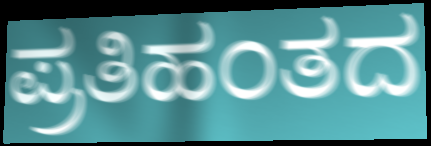
ಪ್ರತಿಹಂತದ